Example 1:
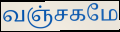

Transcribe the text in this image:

வஞ்சகமே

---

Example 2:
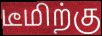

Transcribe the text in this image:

டீமிற்கு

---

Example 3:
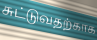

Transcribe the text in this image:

சுட்டுவதற்காக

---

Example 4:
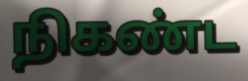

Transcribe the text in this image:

நிகண்ட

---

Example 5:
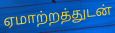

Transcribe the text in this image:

ஏமாற்றத்துடன்